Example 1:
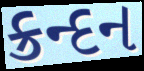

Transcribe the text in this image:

ક્રન્દન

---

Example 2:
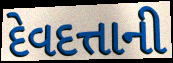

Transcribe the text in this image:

દેવદત્તાની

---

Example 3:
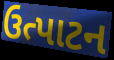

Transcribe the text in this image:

ઉત્પાટન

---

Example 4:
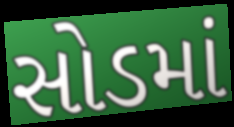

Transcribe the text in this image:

સોડમાં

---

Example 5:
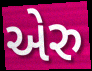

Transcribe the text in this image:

એરુ